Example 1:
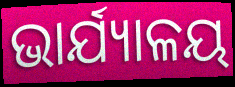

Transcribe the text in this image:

ଭାର୍ଯ୍ୟାଳୟ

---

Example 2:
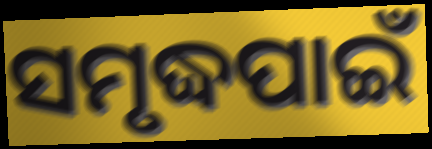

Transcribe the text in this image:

ସମୃଦ୍ଧପାଇଁ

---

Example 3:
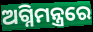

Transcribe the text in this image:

ଅଗ୍ନିମନ୍ତ୍ରରେ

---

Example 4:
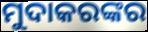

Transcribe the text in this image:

ମୁଦାକରଙ୍କର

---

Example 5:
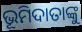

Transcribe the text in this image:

ଭୂମିଦାତାଙ୍କୁ